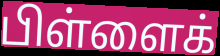
பிள்ளைக்